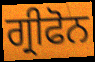
ਗ੍ਰੀਫੋਨ